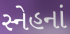
સ્નેહનાં